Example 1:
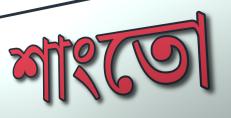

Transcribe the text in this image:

শাংতো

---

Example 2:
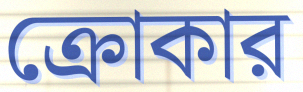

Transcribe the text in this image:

ক্রোকার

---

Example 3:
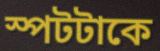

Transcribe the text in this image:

স্পটটাকে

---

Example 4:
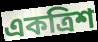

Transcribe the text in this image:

একত্রিশ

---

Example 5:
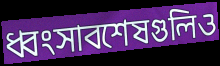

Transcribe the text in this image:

ধ্বংসাবশেষগুলিও